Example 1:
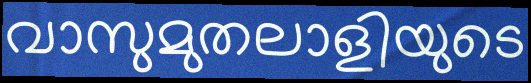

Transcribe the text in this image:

വാസുമുതലാളിയുടെ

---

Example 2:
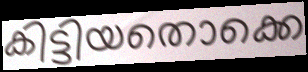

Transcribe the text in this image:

കിട്ടിയതൊക്കെ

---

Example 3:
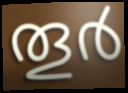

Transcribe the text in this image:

തൂർ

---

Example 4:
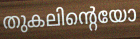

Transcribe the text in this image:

തുകലിന്റെയോ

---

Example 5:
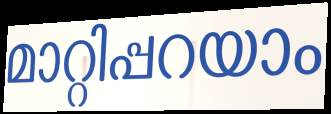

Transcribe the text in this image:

മാറ്റിപ്പറയാം